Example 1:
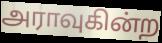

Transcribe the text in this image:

அராவுகின்ற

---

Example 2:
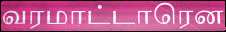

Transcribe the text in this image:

வரமாட்டாரென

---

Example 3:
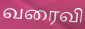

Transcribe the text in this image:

வரைவி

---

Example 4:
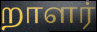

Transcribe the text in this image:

றாளர்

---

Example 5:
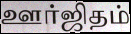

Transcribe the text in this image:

ஊர்ஜிதம்